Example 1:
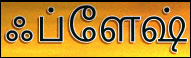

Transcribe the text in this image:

ஃப்ளேஷ்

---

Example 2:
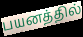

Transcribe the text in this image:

பயனத்தில்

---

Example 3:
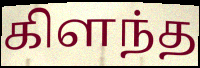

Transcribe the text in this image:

கிளந்த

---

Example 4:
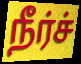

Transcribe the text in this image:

நீர்ச்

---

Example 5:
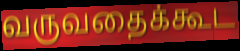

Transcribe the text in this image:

வருவதைக்கூட